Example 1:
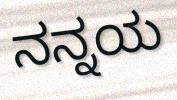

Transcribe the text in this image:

ನನ್ನಯ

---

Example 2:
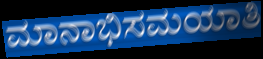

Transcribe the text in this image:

ಮಾನಾಭಿಸಮಯಾತಿ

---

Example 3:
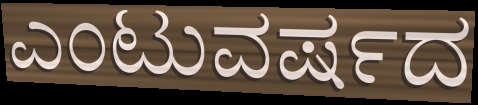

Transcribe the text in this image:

ಎಂಟುವರ್ಷದ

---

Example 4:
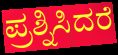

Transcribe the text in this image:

ಪ್ರಶ್ನಿಸಿದರೆ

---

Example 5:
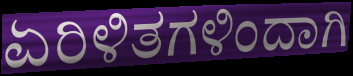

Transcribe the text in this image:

ಏರಿಳಿತಗಳಿಂದಾಗಿ